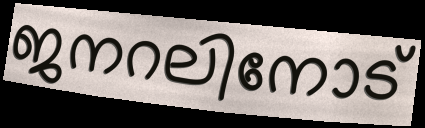
ജനറലിനോട്